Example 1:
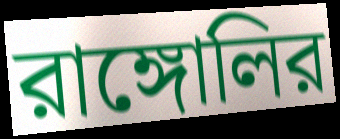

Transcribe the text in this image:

রাঙ্গোলির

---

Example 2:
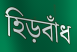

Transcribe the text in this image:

হিড়বাঁধ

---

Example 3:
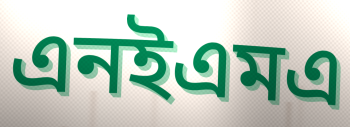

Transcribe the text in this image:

এনইএমএ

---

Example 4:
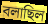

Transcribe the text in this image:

বলাছিল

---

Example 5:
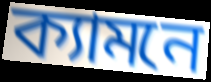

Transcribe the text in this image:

ক্যামনে